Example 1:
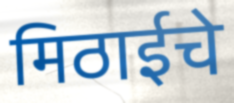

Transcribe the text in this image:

मिठाईचे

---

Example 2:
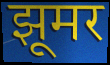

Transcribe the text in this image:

झूमर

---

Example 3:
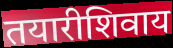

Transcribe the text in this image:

तयारीशिवाय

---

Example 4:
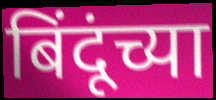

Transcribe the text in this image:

बिंदूंच्या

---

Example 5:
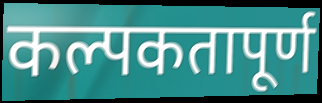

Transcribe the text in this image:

कल्पकतापूर्ण